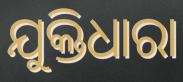
ଯୁକ୍ତିଧାରା